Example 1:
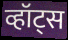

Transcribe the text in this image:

व्हॉट्स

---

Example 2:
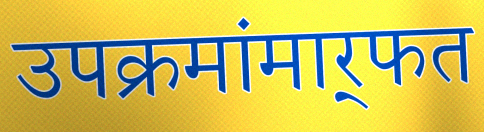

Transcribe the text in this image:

उपक्रमांमार्फत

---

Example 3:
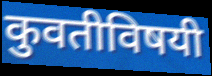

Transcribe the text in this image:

कुवतीविषयी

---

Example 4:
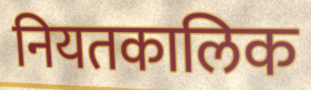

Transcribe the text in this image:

नियतकालिक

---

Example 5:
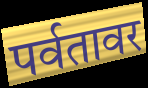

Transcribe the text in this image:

पर्वतावर